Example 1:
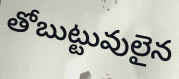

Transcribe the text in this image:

తోబుట్టువులైన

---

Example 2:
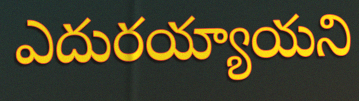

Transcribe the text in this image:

ఎదురయ్యాయని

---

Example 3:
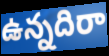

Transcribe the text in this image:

ఉన్నదిరా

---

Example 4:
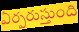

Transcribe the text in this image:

ఏర్పరుస్తుంది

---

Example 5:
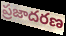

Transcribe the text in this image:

ప్రజాదరణ